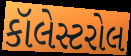
કૉલેસ્ટરોલ